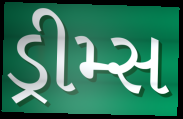
ડ્રીમ્સ